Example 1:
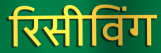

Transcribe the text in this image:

रिसीविंग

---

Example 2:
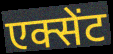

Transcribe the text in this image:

एक्सेंट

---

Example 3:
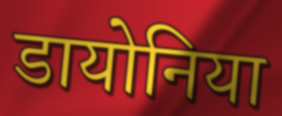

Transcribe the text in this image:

डायोनिया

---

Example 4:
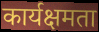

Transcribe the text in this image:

कार्यक्षमता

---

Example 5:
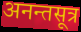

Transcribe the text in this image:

अनन्तसूत्र